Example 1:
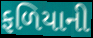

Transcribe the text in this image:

ફળિયાની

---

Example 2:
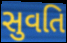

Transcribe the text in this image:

સુવતિ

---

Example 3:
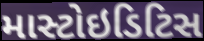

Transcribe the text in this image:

માસ્ટોઇડિટિસ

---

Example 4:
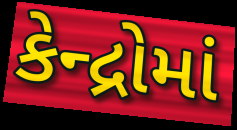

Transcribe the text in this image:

કેન્દ્રોમાં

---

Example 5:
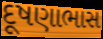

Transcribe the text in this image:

દૂષણાભાસ